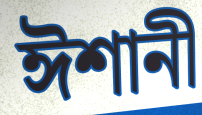
ঈশানী